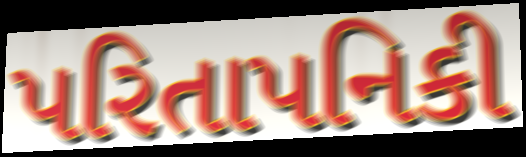
પરિતાપનિકી